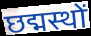
छद्मस्थों